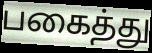
பகைத்து